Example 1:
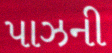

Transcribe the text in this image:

પાઝની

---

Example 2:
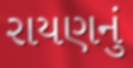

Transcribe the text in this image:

રાયણનું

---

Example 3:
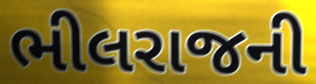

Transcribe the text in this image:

ભીલરાજની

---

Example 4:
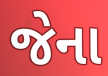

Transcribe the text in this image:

જેના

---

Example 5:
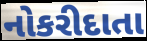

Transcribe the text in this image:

નોકરીદાતા